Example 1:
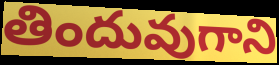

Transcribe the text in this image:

తిందువుగాని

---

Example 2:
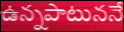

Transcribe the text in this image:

ఉన్నపాటుననే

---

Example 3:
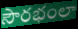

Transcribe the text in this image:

సౌరభంలా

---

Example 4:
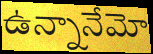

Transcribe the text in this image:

ఉన్నానేమో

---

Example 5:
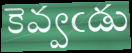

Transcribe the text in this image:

కెవ్వఁడు